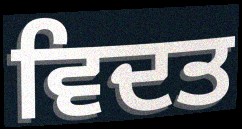
ਵਿਦਤ